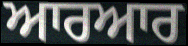
ਆਰਆਰ